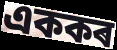
এককৰ